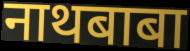
नाथबाबा